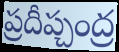
ప్రదీప్చంద్ర